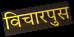
विचारपुस